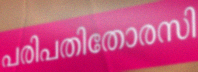
പരിപതിതോരസി